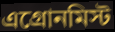
এগ্রোনমিস্ট